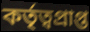
কৰ্তৃত্বপ্ৰাপ্ত